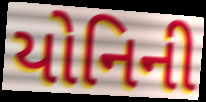
યોનિની